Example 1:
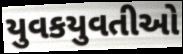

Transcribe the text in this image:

યુવકયુવતીઓ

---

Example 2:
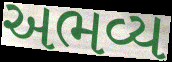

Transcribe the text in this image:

અભવ્ય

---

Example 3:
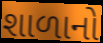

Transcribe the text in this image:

શાળાનો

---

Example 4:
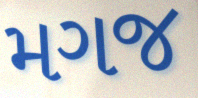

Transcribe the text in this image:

મગજ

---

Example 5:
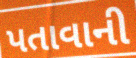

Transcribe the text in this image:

પતાવાની